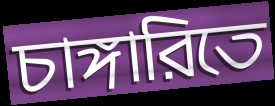
চাঙ্গারিতে